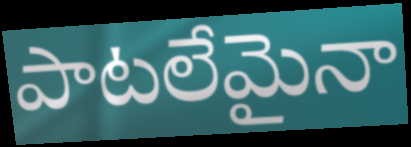
పాటలేమైనా